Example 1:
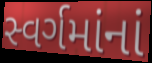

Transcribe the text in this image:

સ્વર્ગમાંનાં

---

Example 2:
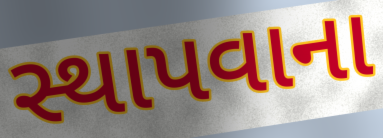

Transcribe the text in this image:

સ્થાપવાના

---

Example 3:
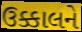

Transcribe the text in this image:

ઉક્કાલને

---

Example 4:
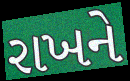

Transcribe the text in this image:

રાખને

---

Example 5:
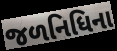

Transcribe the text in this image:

જળનિધિના